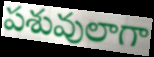
పశువులాగా